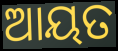
ଆୟତ